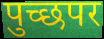
पुच्छपर